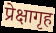
प्रेक्षागृह